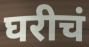
घरीचं